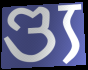
ণ্ড্য